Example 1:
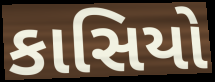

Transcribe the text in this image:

કાસિયો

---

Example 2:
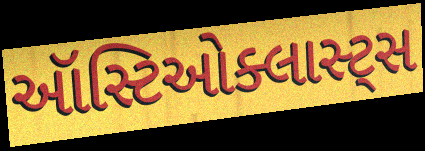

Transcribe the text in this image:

ઑસ્ટિઓક્લાસ્ટ્સ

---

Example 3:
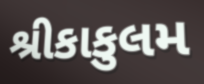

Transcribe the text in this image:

શ્રીકાકુલમ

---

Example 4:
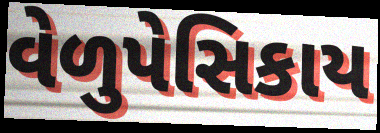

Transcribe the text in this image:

વેળુપેસિકાય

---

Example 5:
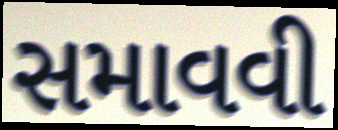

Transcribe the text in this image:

સમાવવી